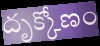
దృక్కోణం